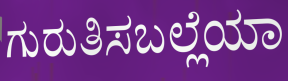
ಗುರುತಿಸಬಲ್ಲೆಯಾ